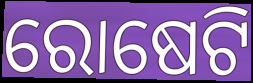
ରୋଷେଟି